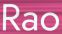
Rao